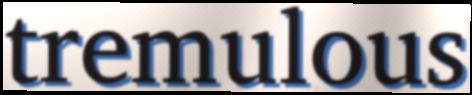
tremulous